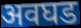
अवघड